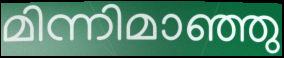
മിന്നിമാഞ്ഞു